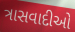
ત્રાસવાદીઓ